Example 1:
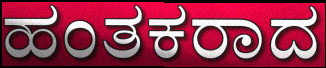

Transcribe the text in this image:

ಹಂತಕರಾದ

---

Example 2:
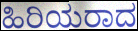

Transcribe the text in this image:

ಹಿರಿಯರಾದ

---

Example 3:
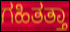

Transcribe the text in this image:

ಗಹಿತತ್ತಾ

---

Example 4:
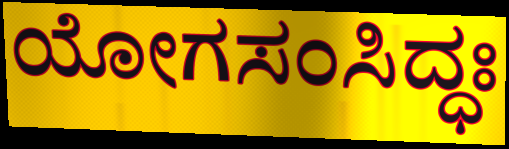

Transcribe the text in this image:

ಯೋಗಸಂಸಿದ್ಧಃ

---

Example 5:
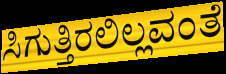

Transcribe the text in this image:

ಸಿಗುತ್ತಿರಲಿಲ್ಲವಂತೆ